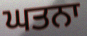
ਘਤਨਾ